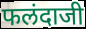
फलंदाजी